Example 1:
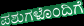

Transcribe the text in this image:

ಪಶುಗಳೊಂದಿಗೆ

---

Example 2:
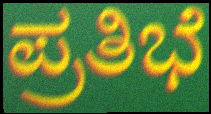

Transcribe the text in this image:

ಪ್ರತಿಭೆ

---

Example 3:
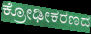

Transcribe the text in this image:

ಕ್ರೋಢೀಕರಣದ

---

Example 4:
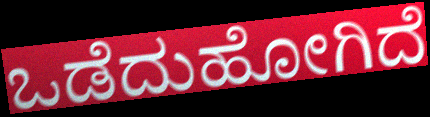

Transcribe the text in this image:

ಒಡೆದುಹೋಗಿದೆ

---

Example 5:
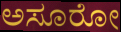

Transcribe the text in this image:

ಅಸೂರೋ